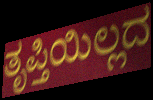
ತೃಪ್ತಿಯಿಲ್ಲದ